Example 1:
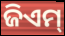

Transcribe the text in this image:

ଜିଏମ୍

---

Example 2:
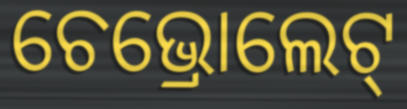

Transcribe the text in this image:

ଚେଭ୍ରୋଲେଟ୍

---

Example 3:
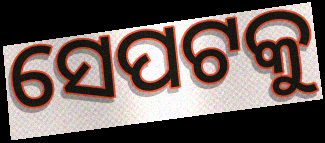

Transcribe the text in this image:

ସେପଟକୁ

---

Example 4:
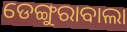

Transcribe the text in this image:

ଡେଙ୍ଗୁରାବାଲା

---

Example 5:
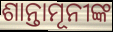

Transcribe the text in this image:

ଶାନ୍ତାମୂନୀଙ୍କ